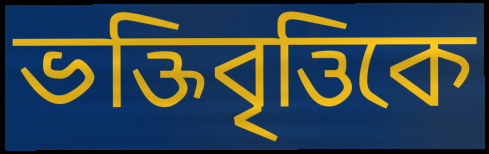
ভক্তিবৃত্তিকে